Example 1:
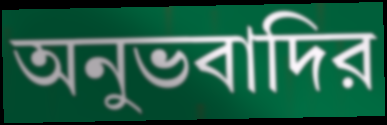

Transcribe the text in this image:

অনুভবাদির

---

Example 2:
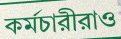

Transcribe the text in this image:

কর্মচারীরাও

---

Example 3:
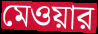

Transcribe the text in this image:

মেওয়ার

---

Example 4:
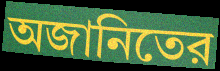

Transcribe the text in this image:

অজানিতের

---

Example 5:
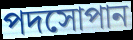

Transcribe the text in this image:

পদসোপান